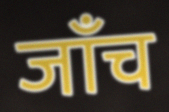
जाँच